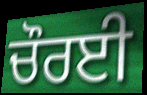
ਚੌਰਈ